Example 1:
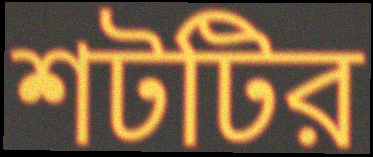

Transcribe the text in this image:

শটটির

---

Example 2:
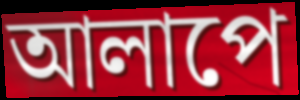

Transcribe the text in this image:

আলাপে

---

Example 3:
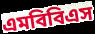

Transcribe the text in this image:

এমবিবিএস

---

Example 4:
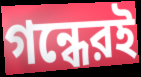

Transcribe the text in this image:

গন্ধেরই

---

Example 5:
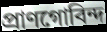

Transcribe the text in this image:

প্রাণগোবিন্দ